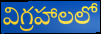
విగ్రహాలలో